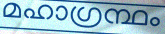
മഹാഗ്രന്ഥം